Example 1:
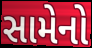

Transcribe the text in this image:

સામેનો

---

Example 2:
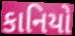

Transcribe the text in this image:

કાનિયો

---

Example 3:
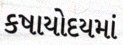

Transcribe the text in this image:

કષાયોદયમાં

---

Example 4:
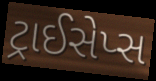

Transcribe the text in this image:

ટ્રાઈસેપ્સ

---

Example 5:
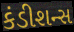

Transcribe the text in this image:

કંડીશન્સ